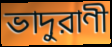
ভাদুরাণী